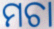
ମଚା